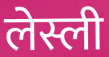
लेस्ली